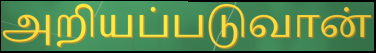
அறியப்படுவான்